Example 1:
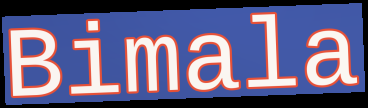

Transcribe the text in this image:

Bimala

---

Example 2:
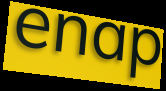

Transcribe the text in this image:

enap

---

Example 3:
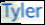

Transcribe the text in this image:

Tyler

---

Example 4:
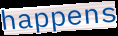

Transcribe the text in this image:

happens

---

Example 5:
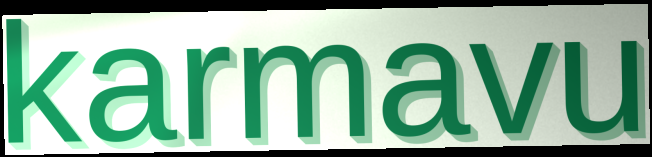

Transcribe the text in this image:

karmavu